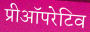
प्रीऑपरेटिव